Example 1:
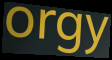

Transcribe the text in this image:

orgy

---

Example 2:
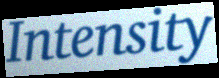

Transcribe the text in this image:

Intensity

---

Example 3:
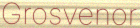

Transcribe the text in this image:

Grosvenor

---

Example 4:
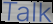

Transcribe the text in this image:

Talk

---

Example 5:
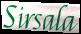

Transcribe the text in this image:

Sirsala